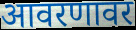
आवरणावर